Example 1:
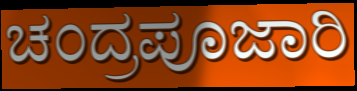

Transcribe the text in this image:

ಚಂದ್ರಪೂಜಾರಿ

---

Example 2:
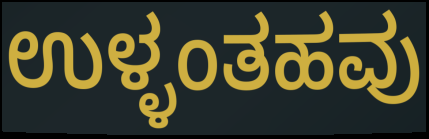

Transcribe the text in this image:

ಉಳ್ಳಂತಹವು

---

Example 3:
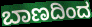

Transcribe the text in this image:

ಬಾಣದಿಂದ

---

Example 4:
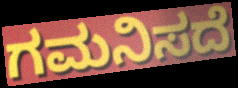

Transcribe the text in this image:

ಗಮನಿಸದೆ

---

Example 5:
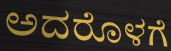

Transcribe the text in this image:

ಅದರೊಳಗೆ